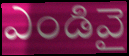
ఎండివై